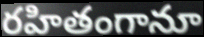
రహితంగానూ